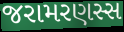
જરામરણસ્સ